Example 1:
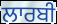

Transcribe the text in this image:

ਲਾਰਬੀ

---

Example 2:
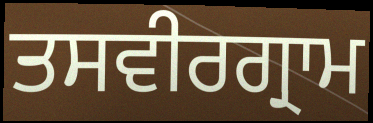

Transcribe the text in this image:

ਤਸਵੀਰਗ੍ਰਾਮ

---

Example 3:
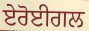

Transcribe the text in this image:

ਏਰੋਈਗਲ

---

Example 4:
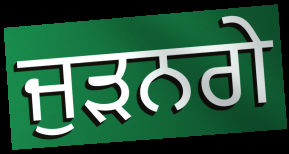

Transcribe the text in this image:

ਜੁਡ਼ਨਗੇ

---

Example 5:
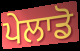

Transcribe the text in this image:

ਪੇਲਾਡੋ